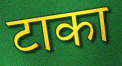
टाका